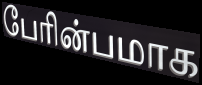
பேரின்பமாக